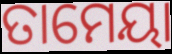
ତାମେୟା